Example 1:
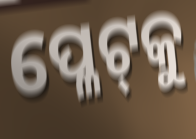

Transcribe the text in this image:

ପ୍ଳେଟ୍‌କୁ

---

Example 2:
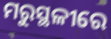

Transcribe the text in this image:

ମରୁସ୍ଥଳୀରେ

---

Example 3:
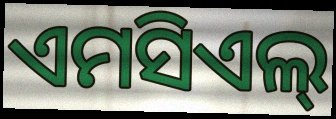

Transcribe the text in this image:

ଏମସିଏଲ୍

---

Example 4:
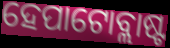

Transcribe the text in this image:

ହେପାଟୋବ୍ଲାଷ୍ଟ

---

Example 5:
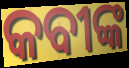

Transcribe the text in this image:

କବୀଙ୍କ